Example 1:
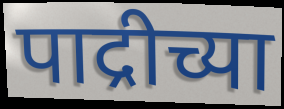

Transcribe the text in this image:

पाद्रीच्या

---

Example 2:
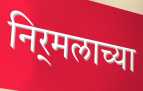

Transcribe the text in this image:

निर्मलाच्या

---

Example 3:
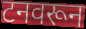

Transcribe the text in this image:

टनवरून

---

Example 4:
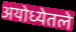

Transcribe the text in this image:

अयोध्येतले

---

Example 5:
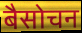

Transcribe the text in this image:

बैसोचन